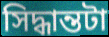
সিদ্ধান্তটা